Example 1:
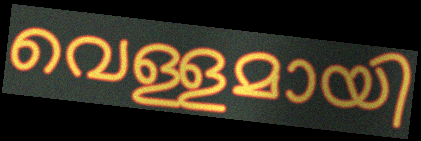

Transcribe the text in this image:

വെള്ളമായി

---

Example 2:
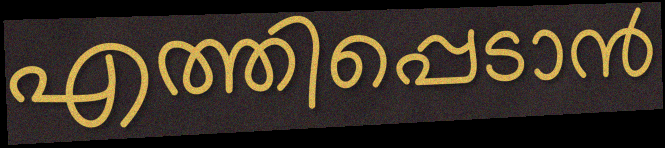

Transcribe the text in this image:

എത്തിപ്പെടാൻ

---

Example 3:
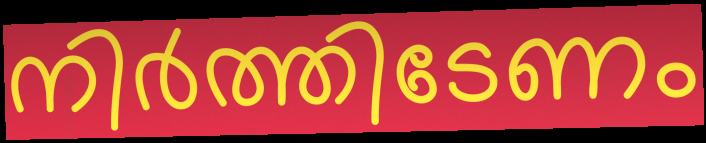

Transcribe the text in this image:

നിർത്തിടേണം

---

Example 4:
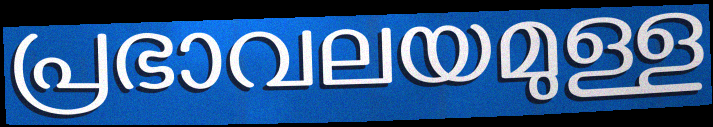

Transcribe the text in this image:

പ്രഭാവലയമുള്ള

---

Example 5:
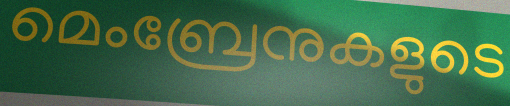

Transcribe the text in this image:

മെംബ്രേനുകളുടെ